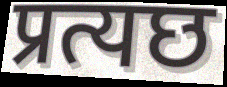
प्रत्यछ